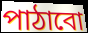
পাঠাবো